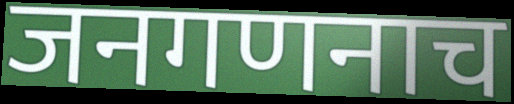
जनगणनाच